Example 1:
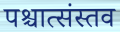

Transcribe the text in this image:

पश्चात्संस्तव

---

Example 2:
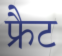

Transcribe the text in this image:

फ्रैट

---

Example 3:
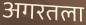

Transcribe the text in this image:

अगरतला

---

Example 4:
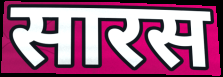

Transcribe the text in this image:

सारस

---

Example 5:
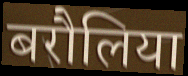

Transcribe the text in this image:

बरौलिया